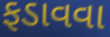
ફડાવવા